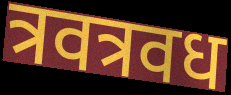
त्रवत्रवध